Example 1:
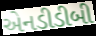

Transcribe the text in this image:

એનડીડીબી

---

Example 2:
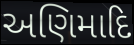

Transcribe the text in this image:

અણિમાદિ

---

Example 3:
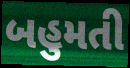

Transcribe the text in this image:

બહુમતી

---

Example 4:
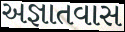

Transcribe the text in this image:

અજ્ઞાતવાસ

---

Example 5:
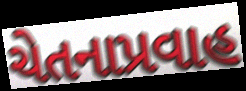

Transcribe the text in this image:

ચેતનાપ્રવાહ